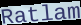
Ratlam